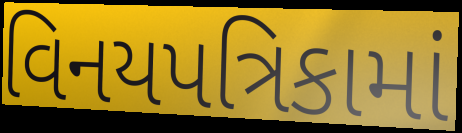
વિનયપત્રિકામાં